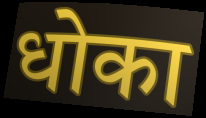
धोका